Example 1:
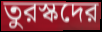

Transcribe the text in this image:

তুরস্কদের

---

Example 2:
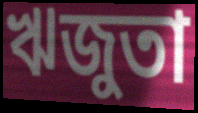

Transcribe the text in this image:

ঋজুতা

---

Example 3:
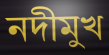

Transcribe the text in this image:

নদীমুখ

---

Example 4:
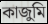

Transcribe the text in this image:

কাজুমি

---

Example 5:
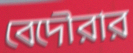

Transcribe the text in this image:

বেদৌরার